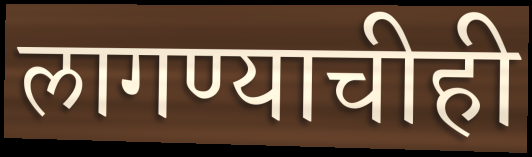
लागण्याचीही